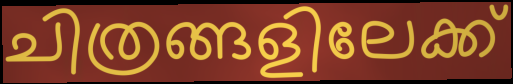
ചിത്രങ്ങളിലേക്ക്